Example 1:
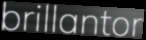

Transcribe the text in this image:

brillantor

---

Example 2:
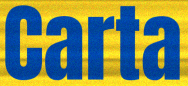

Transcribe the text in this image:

Carta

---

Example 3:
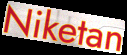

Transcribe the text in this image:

Niketan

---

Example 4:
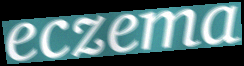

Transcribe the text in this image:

eczema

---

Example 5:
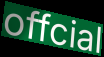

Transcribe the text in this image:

offcial